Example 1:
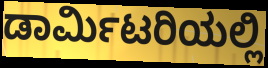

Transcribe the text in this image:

ಡಾರ್ಮಿಟರಿಯಲ್ಲಿ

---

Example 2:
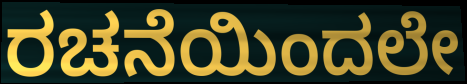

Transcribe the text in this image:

ರಚನೆಯಿಂದಲೇ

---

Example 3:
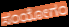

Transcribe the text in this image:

ಸಂಯೋಗಂ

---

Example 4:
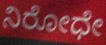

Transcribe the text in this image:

ನಿರೋಧೇ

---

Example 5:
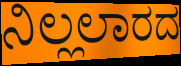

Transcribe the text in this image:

ನಿಲ್ಲಲಾರದ